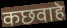
कछवाहे